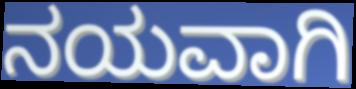
ನಯವಾಗಿ